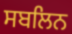
ਸਬਲਿਨ